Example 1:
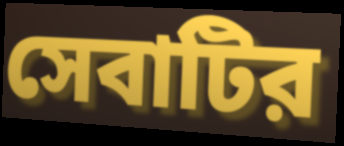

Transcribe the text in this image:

সেবাটির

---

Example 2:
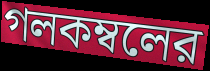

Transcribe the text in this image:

গলকম্বলের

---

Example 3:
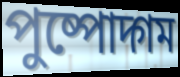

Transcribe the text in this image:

পুষ্পোদ্গম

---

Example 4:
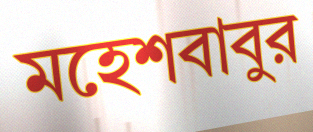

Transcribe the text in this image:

মহেশবাবুর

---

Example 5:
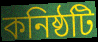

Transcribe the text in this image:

কনিষ্ঠটি